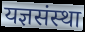
यज्ञसंस्था